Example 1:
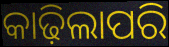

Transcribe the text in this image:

କାଢ଼ିଲାପରି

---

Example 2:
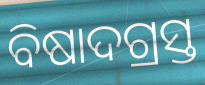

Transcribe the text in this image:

ବିଷାଦଗ୍ରସ୍ତ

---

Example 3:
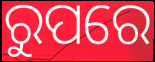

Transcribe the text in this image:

ରୁପରେ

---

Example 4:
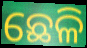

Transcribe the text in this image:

ଛେଳି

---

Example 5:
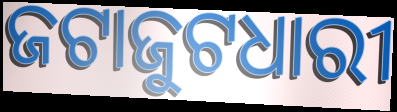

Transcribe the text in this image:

ଜଟାଜୁଟଧାରୀ